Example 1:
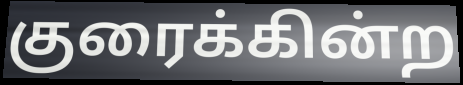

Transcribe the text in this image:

குரைக்கின்ற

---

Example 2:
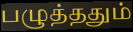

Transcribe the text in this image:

பழுத்ததும்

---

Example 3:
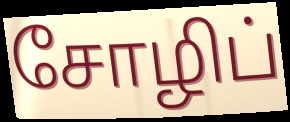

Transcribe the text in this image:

சோழிப்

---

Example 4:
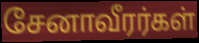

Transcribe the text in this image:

சேனாவீரர்கள்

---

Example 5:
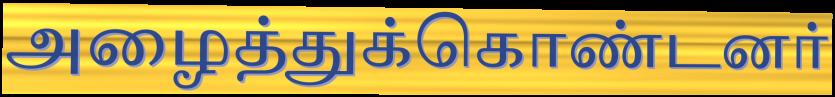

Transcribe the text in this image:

அழைத்துக்கொண்டனர்